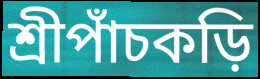
শ্রীপাঁচকড়ি